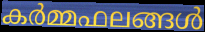
കർമ്മഫലങ്ങൾ